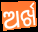
ଅର୍ଖ